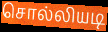
சொல்லியடி